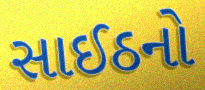
સાઈઠનો